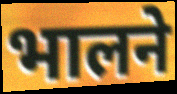
भालने